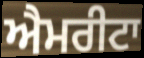
ਐਮਰੀਟਾ